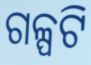
ଗଳ୍ପଟି